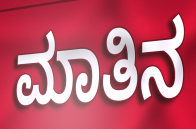
ಮಾತಿನ